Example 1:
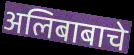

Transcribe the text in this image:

अलिबाबाचे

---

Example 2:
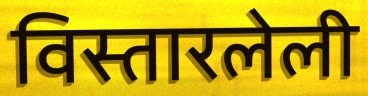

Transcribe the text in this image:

विस्तारलेली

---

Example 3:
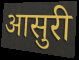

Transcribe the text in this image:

आसुरी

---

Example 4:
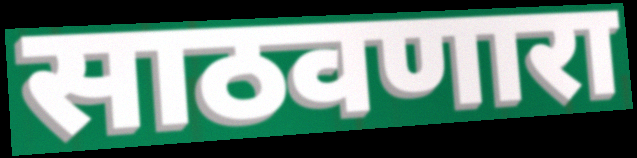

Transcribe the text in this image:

साठवणारा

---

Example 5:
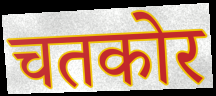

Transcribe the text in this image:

चतकोर